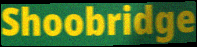
Shoobridge